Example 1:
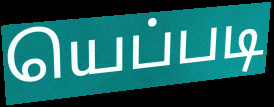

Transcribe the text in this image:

யெப்படி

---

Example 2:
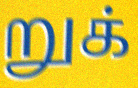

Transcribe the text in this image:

றுக்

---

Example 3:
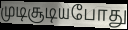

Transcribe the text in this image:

முடிசூடியபோது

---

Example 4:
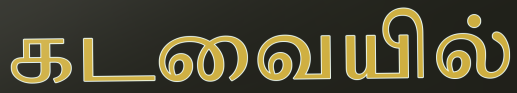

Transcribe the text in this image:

கடவையில்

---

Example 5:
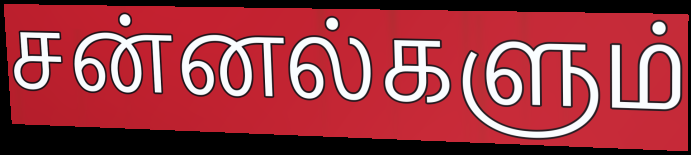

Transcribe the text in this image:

சன்னல்களும்